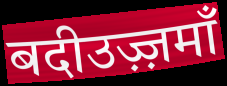
बदीउज़्ज़माँ